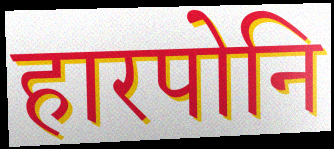
हारपोनि